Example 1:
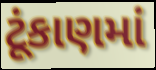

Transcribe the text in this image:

ટૂંકાણમાં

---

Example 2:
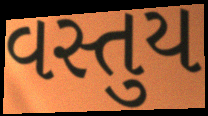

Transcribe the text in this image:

વસ્તુય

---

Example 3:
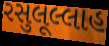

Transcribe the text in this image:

રસુલૂલ્લાહ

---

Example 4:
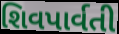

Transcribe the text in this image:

શિવપાર્વતી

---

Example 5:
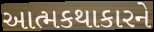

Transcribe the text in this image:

આત્મકથાકારને